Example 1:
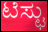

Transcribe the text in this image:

ಟೆಸ್ಟು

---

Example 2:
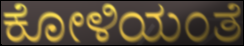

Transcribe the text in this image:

ಕೋಳಿಯಂತೆ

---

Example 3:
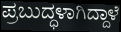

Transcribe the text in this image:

ಪ್ರಬುದ್ಧಳಾಗಿದ್ದಾಳೆ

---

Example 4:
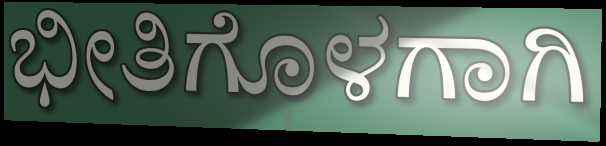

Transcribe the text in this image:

ಭೀತಿಗೊಳಗಾಗಿ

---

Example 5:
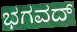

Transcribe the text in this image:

ಭಗವದ್